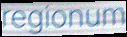
regionum